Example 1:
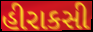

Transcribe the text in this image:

હીરાકસી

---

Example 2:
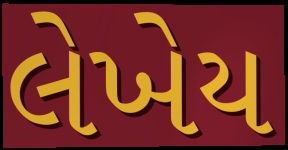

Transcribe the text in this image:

લેખેય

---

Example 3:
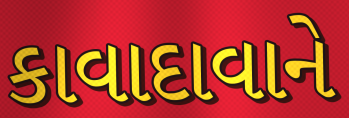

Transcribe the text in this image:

કાવાદાવાને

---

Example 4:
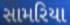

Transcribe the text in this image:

સામરિયા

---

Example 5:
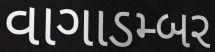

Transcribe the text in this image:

વાગાડમ્બર